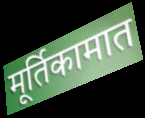
मूर्तिकामात